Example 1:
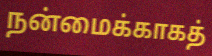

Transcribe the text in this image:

நன்மைக்காகத்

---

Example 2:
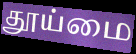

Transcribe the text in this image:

தூய்மை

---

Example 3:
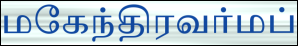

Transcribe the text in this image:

மகேந்திரவர்மப்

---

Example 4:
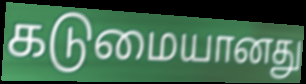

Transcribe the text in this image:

கடுமையானது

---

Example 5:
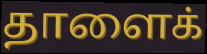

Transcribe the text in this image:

தாளைக்